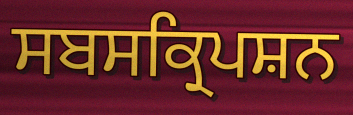
ਸਬਸਕ੍ਰਿਪਸ਼ਨ